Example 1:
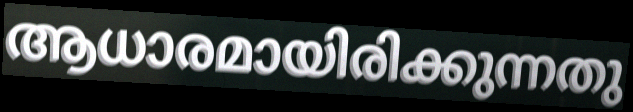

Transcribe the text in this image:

ആധാരമായിരിക്കുന്നതു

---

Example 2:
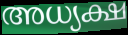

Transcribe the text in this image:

അധ്യക്ഷ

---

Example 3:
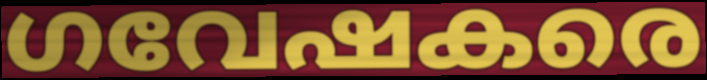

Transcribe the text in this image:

ഗവേഷകരെ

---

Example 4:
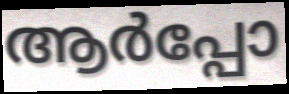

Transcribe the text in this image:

ആർപ്പോ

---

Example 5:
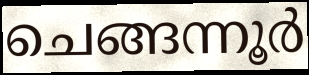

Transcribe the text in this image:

ചെങ്ങന്നൂർ